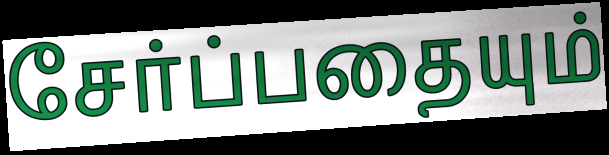
சேர்ப்பதையும்